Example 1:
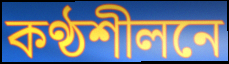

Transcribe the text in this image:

কণ্ঠশীলনে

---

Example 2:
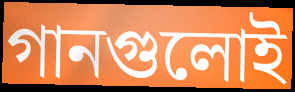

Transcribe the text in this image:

গানগুলোই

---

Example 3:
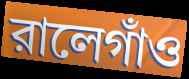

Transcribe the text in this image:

রালেগাঁও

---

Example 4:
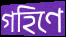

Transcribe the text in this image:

গহিণে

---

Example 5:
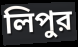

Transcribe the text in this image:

লিপুর